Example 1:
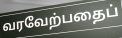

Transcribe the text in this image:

வரவேற்பதைப்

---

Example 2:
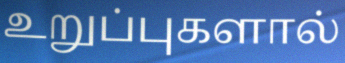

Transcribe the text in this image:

உறுப்புகளால்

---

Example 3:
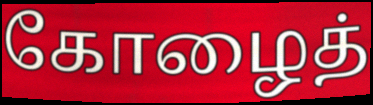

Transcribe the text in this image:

கோழைத்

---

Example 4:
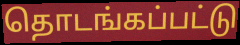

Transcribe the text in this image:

தொடங்கப்பட்டு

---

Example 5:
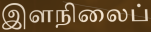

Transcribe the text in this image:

இளநிலைப்